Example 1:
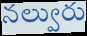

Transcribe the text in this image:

నల్వురు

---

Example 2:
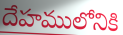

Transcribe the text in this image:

దేహములోనికి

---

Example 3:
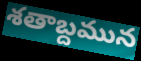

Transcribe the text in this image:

శతాబ్దమున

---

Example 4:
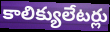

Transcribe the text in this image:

కాలిక్యులేటర్లు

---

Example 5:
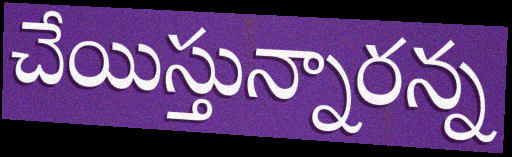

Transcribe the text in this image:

చేయిస్తున్నారన్న